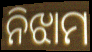
ନିଝାମ